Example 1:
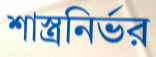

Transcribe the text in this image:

শাস্ত্রনির্ভর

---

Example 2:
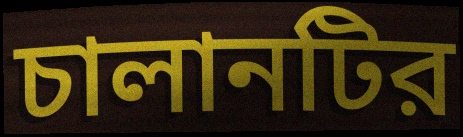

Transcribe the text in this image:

চালানটির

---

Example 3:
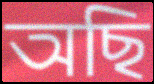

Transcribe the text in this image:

অছি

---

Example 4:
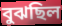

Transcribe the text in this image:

বুঝছিল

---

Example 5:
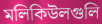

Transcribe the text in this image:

মলিকিউলগুলি